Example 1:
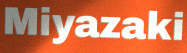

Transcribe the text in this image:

Miyazaki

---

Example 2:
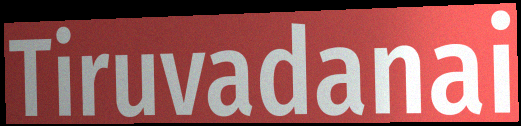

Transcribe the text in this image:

Tiruvadanai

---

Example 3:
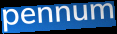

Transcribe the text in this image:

pennum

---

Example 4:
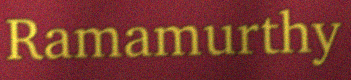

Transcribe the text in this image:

Ramamurthy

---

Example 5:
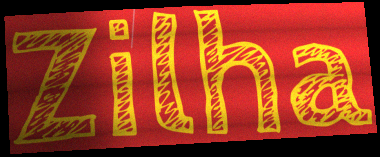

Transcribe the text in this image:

Zilha